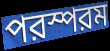
পরস্পরম